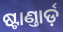
ଷ୍ଟାଣ୍ତାର୍ଡ଼